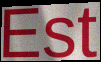
Est